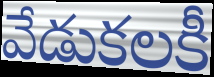
వేడుకలకీ